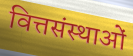
वित्तसंस्थाओं